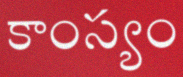
కాంస్యం